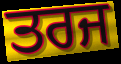
ਤਰਜ